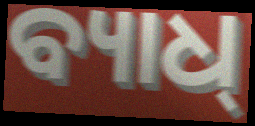
ବ୍ୟାଧ୍